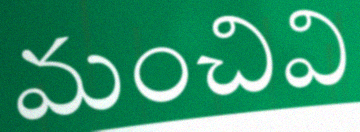
మంచివి